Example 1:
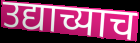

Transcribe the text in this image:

उद्याच्याच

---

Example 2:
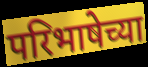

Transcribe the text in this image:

परिभाषेच्या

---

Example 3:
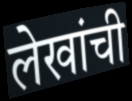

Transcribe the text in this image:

लेखांची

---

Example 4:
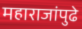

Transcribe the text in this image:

महाराजांपुढे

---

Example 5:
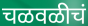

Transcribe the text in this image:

चळवळीचं